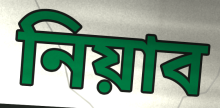
নিয়াব